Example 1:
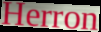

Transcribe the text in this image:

Herron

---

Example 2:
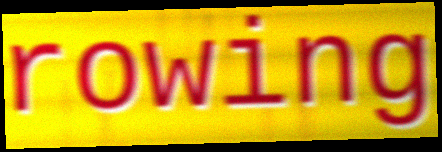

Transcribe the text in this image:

rowing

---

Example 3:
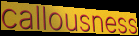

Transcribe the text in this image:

callousness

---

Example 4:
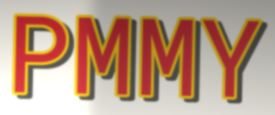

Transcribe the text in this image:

PMMY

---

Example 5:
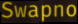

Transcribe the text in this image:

Swapno